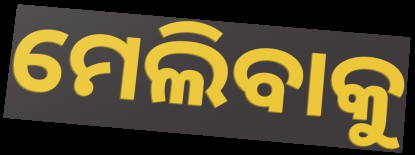
ମେଲିବାକୁ